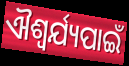
ଐଶ୍ୱର୍ଯ୍ୟପାଇଁ